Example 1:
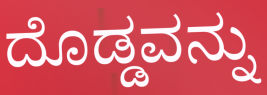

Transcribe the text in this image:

ದೊಡ್ಡವನ್ನು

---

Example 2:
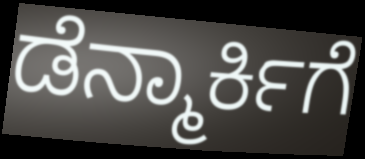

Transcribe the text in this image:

ಡೆನ್ಮಾರ್ಕಿಗೆ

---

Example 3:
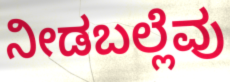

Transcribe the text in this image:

ನೀಡಬಲ್ಲೆವು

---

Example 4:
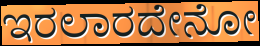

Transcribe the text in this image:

ಇರಲಾರದೇನೋ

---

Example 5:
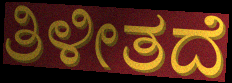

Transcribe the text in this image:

ತಿಳೀತದೆ